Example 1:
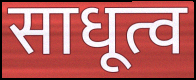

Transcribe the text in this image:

साधूत्व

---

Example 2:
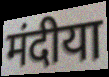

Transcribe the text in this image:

मंदीया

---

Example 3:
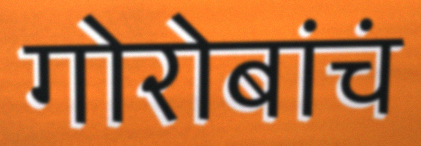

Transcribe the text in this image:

गोरोबांचं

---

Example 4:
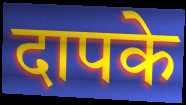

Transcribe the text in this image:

दापके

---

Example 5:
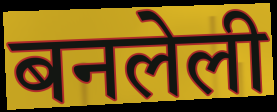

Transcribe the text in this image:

बनलेली